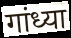
गांध्या